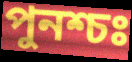
পুনশ্চঃ